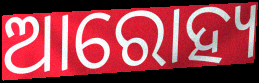
ଆରୋହ୍ୟ